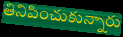
తినిపించుకున్నారు